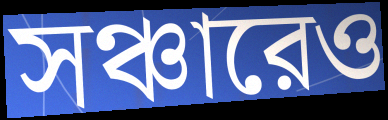
সঞ্চারেও